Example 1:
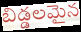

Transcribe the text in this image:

బిడ్డలమైన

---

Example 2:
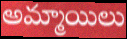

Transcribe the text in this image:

అమ్మాయిలు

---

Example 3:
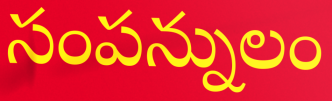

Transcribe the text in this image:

సంపన్నులం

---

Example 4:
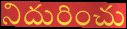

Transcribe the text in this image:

నిదురించు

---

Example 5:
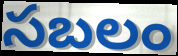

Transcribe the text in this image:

సబలం